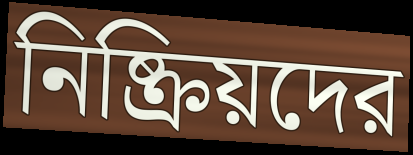
নিষ্ক্রিয়দের